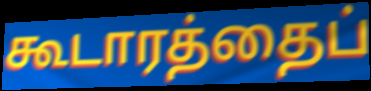
கூடாரத்தைப்